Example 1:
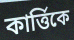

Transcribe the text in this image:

কার্ত্তিকে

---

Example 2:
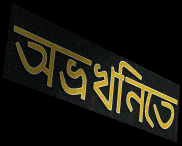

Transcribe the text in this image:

অভ্রখনিতে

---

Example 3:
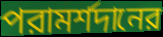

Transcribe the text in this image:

পরামর্শদানের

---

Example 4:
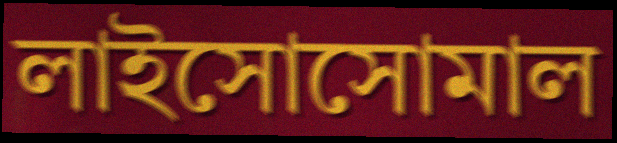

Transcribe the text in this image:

লাইসোসোমাল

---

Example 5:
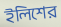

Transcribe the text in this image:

ইলিশের